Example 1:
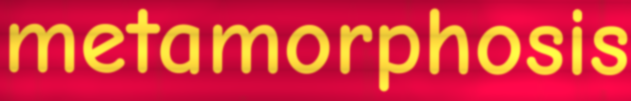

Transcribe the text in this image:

metamorphosis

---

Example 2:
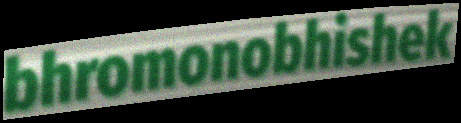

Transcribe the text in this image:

bhromonobhishek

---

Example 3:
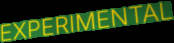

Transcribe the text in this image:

EXPERIMENTAL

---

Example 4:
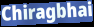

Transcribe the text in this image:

Chiragbhai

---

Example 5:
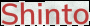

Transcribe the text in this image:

Shinto